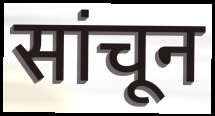
सांचून